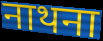
नाथना